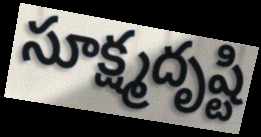
సూక్ష్మదృష్టి